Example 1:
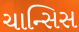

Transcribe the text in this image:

ચાન્સિસ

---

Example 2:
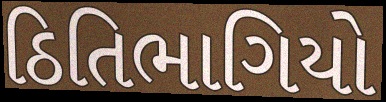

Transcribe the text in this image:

ઠિતિભાગિયો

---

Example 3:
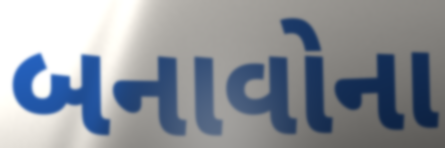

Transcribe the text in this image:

બનાવોના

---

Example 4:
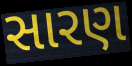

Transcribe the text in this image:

સારણ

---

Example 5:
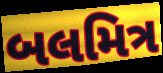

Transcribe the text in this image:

બલમિત્ર